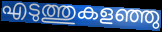
എടുത്തുകളഞ്ഞു